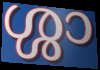
ശ്ശാ